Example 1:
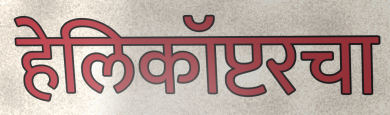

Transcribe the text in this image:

हेलिकॉप्टरचा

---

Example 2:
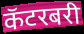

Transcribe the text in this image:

कॅटरबरी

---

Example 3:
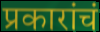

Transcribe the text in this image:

प्रकारांचं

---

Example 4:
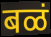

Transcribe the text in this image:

बळं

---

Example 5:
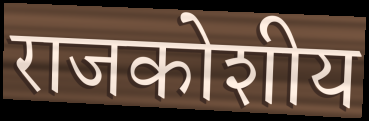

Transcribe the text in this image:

राजकोशीय